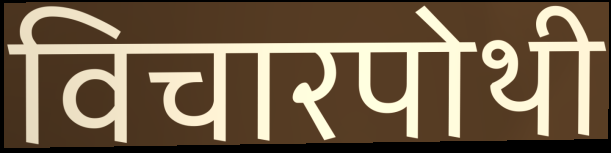
विचारपोथी